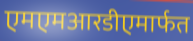
एमएमआरडीएमार्फत